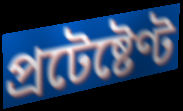
প্ৰটেষ্টেণ্ট